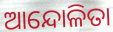
ଆନ୍ଦୋଳିତା